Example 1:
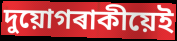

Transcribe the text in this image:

দুয়োগৰাকীয়েই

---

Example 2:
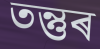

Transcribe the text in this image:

তন্তুৰ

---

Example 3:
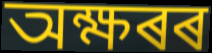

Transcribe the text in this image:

অক্ষৰৰ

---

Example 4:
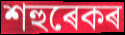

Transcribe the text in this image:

শহুৰেকৰ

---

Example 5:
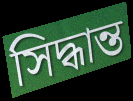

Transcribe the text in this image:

সিদ্ধান্ত